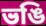
ভঙি